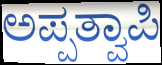
ಅಪ್ಪತ್ವಾಪಿ